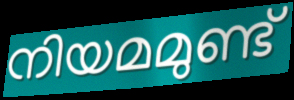
നിയമമുണ്ട്